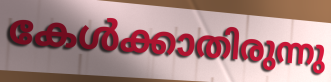
കേൾക്കാതിരുന്നു